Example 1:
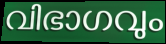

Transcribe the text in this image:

വിഭാഗവും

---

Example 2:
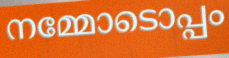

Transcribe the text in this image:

നമ്മോടൊപ്പം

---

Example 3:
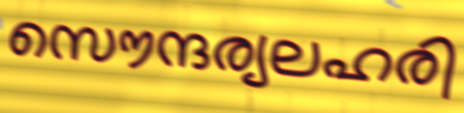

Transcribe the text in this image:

സൌന്ദര്യലഹരി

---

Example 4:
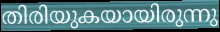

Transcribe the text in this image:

തിരിയുകയായിരുന്നു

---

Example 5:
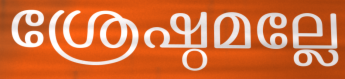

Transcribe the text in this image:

ശ്രേഷ്ഠമല്ലേ